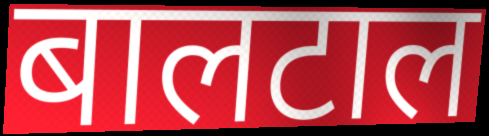
बालटाल